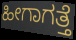
ಹೀಗಾಗತ್ತೆ